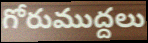
గోరుముద్దలు